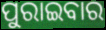
ପୁରାଇବାର